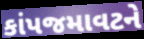
કાંપજમાવટને